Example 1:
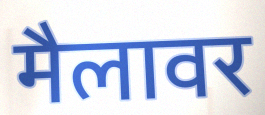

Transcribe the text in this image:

मैलावर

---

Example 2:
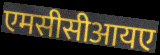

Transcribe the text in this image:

एमसीसीआयए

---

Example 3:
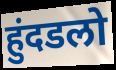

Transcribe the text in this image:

हुंदडलो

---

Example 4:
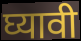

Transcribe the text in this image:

घ्यावी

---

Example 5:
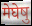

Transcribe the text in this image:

मेघेषु